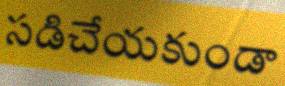
సడిచేయకుండా